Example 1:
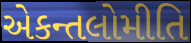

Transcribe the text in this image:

એકન્તલોમીતિ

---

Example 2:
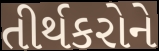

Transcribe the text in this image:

તીર્થકરોને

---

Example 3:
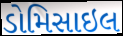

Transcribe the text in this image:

ડોમિસાઇલ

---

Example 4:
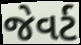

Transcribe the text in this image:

જેવર્ટ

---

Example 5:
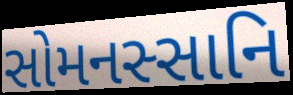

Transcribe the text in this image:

સોમનસ્સાનિ